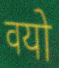
वयो